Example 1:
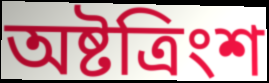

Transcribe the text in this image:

অষ্টত্রিংশ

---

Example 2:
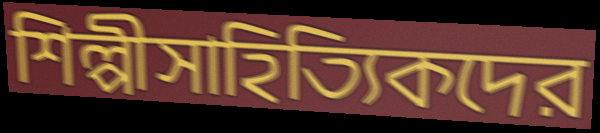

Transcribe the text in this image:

শিল্পীসাহিত্যিকদের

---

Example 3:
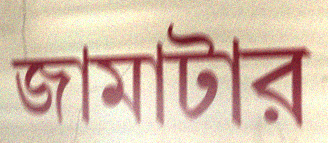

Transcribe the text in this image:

জামাটার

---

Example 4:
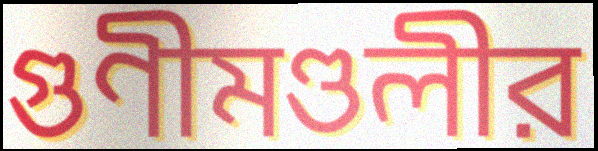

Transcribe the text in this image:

গুণীমণ্ডলীর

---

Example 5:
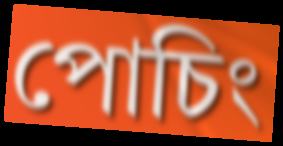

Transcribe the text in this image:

পোচিং